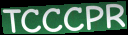
TCCCPR